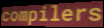
compilers